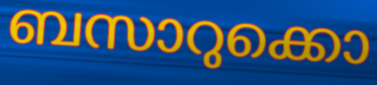
ബസാറുക്കൊ